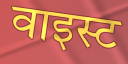
वाइस्ट